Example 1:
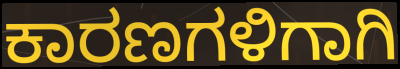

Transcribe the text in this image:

ಕಾರಣಗಳಿಗಾಗಿ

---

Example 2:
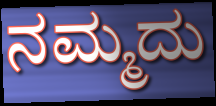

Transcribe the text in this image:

ನಮ್ಮದು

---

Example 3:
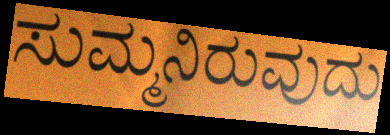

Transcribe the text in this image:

ಸುಮ್ಮನಿರುವುದು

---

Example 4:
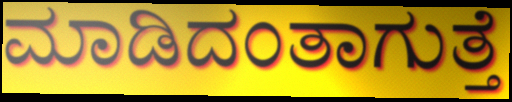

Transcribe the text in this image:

ಮಾಡಿದಂತಾಗುತ್ತೆ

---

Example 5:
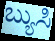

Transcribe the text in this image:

ಬ್ಯುಸಿ